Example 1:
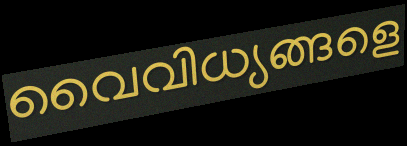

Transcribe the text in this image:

വൈവിധ്യങ്ങളെ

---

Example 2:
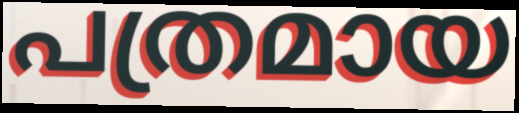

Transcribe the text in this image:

പത്രമായ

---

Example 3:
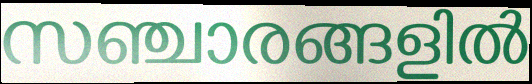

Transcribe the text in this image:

സഞ്ചാരങ്ങളിൽ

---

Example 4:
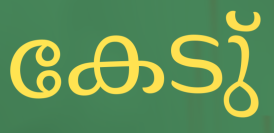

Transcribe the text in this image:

കേടു്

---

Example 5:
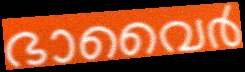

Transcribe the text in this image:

ഭാവൈർ